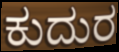
ಕುದುರ